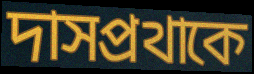
দাসপ্রথাকে